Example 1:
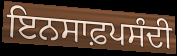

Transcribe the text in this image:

ਇਨਸਾਫ਼ਪਸੰਦੀ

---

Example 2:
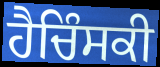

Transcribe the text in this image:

ਹੈਚਿੰਸਕੀ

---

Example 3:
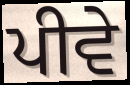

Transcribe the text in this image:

ਪੀਵੇ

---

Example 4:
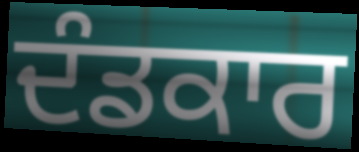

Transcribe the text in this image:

ਦੰਡਕਾਰ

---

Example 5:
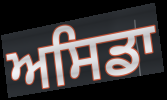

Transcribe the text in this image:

ਅਸਿਡਾ